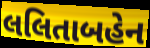
લલિતાબહેન